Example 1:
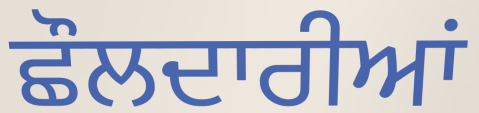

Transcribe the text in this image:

ਛੌਲਦਾਰੀਆਂ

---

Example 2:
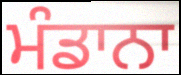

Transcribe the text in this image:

ਮੰਡਾਨਾ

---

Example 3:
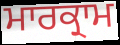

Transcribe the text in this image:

ਮਾਰਕ੍ਰਾਮ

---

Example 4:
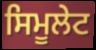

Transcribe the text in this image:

ਸਿਮੂਲੇਟ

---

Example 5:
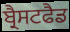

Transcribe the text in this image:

ਬ੍ਰੈਸਟਫੈਡ